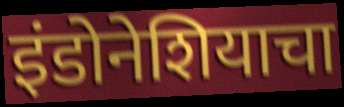
इंडोनेशियाचा